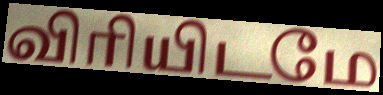
விரியிடமே